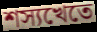
শস্যখেতে